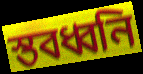
স্তবধ্বনি